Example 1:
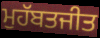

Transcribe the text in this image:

ਮੁਹੱਬਤਜੀਤ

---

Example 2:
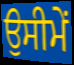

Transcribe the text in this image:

ਉਸੀਮੇਂ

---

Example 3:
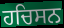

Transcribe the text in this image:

ਹਚਿਸਨ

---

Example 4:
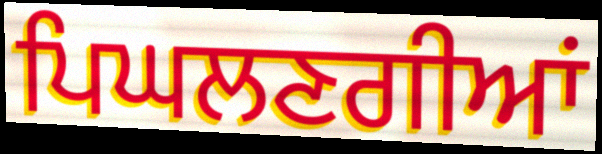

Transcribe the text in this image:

ਪਿਘਲਣਗੀਆਂ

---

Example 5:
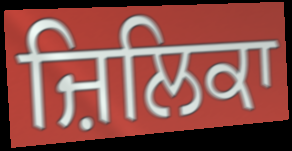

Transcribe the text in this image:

ਜ਼ਿਲਿਕਾ